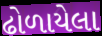
ઢોળાયેલા